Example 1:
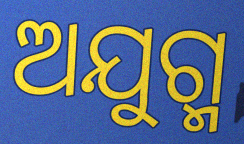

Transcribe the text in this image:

ଅଯୁଗ୍ମ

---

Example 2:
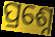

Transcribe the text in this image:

ପ୍ରଶ୍ନେ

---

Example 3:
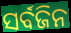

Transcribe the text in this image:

ସର୍ବଜିନ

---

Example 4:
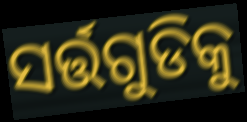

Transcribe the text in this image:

ସର୍ତ୍ତଗୁଡିକୁ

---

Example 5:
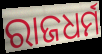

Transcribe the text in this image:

ରାଜଧର୍ମ